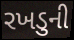
રખડુની